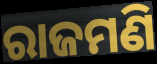
ରାଜମଣି